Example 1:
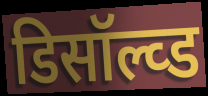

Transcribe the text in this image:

डिसॉल्व्ड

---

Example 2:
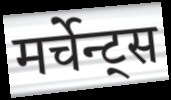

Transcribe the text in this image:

मर्चेन्ट्स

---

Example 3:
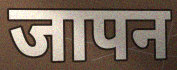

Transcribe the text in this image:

जापन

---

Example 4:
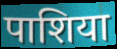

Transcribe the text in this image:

पाशिया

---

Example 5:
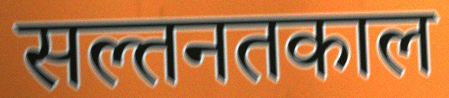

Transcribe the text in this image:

सल्तनतकाल